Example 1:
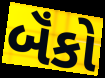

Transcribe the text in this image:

બૅંકો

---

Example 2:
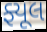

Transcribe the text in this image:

ફ્યૂલ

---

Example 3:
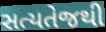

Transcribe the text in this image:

સત્યતેજથી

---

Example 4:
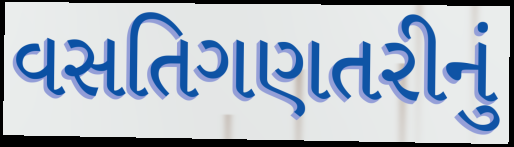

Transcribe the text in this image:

વસતિગણતરીનું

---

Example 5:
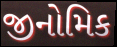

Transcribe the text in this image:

જીનોમિક